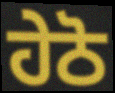
ਹੇਠੋ